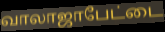
வாலாஜாபேட்டை